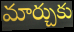
మార్చుకు